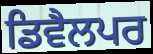
ਡਿਵੈਲਪਰ